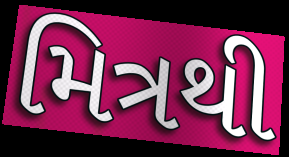
મિત્રથી